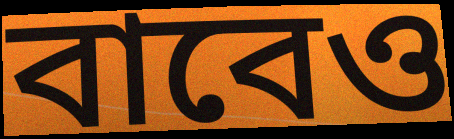
বাবেও